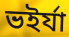
ভইর্যা